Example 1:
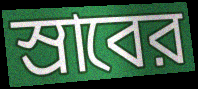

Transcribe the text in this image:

স্রাবের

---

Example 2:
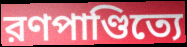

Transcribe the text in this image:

রণপাণ্ডিত্যে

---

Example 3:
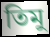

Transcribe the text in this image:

তিমু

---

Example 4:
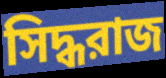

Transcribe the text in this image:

সিদ্ধরাজ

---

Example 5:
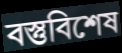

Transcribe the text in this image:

বস্তুবিশেষ